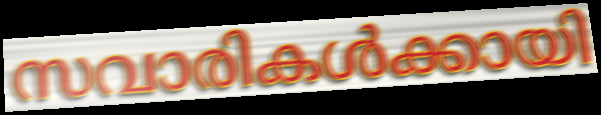
സവാരികൾക്കായി